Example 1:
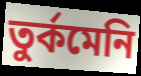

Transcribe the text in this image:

তুর্কমেনি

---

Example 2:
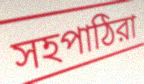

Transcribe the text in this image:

সহপাঠিরা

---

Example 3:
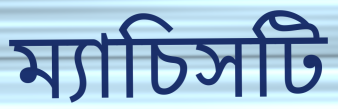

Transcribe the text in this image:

ম্যাচিসটি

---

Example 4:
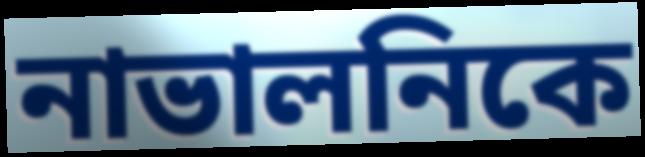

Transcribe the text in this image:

নাভালনিকে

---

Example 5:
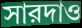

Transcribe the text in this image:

সারদাও